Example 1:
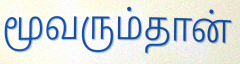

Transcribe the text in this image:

மூவரும்தான்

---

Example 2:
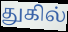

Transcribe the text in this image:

துகில்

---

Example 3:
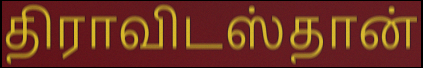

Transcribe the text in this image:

திராவிடஸ்தான்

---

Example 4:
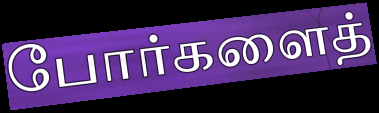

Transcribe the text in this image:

போர்களைத்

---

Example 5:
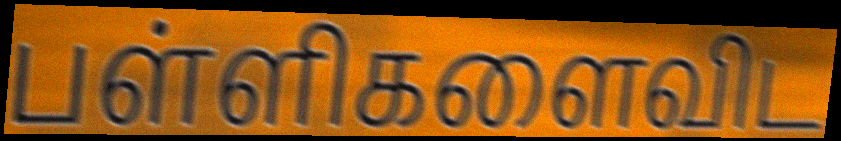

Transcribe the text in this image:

பள்ளிகளைவிட